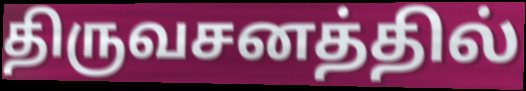
திருவசனத்தில்